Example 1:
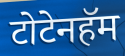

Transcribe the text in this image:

टोटेनहॅम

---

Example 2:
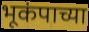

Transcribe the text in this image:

भूकंपाच्या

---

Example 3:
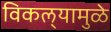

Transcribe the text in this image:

विकल्यामुळे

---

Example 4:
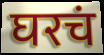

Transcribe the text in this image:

घरचं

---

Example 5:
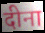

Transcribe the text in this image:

दीना